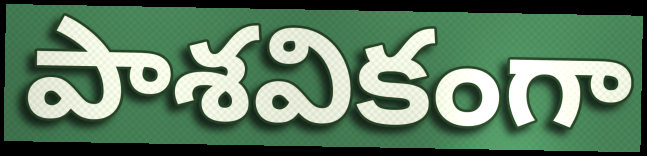
పాశవికంగా